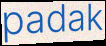
padak